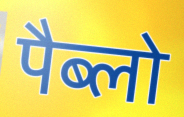
पैब्लो